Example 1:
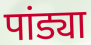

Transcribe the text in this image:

पांड्या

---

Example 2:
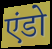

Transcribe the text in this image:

एंडो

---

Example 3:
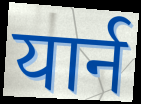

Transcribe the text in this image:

यार्न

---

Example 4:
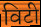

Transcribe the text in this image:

विटी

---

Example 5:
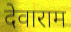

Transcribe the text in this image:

देवाराम